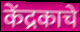
केंद्रकाचे